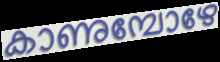
കാണുമ്പോഴേ